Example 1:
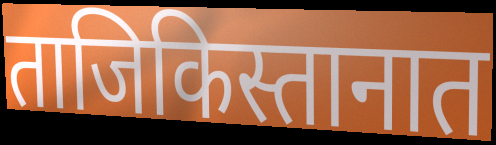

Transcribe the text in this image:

ताजिकिस्तानात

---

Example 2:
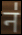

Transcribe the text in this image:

न॑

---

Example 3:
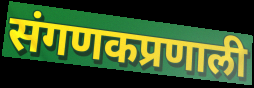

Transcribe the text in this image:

संगणकप्रणाली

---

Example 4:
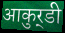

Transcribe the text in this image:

आकुर्डी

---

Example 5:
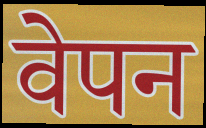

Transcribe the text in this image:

वेपन